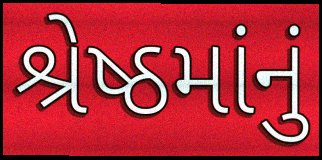
શ્રેષ્ઠમાંનું